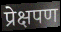
प्रेक्षपण